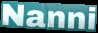
Nanni